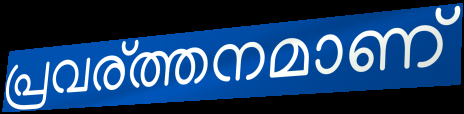
പ്രവര്ത്തനമാണ്